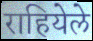
राहियेले